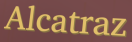
Alcatraz